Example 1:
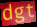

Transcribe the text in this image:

dgt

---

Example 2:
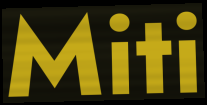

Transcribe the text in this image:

Miti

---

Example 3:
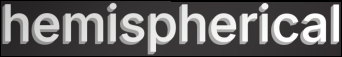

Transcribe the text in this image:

hemispherical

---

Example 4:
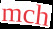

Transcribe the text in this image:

mch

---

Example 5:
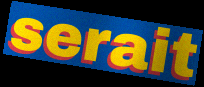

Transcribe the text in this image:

serait